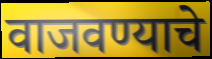
वाजवण्याचे